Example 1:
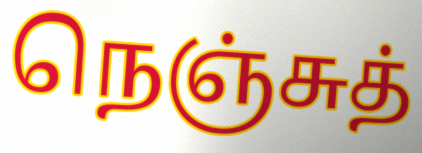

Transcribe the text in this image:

நெஞ்சுத்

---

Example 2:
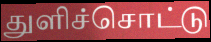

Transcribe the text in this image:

துளிச்சொட்டு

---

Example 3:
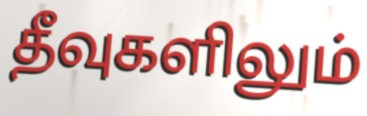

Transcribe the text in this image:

தீவுகளிலும்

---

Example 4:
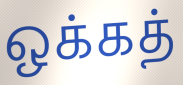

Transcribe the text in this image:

ஒக்கத்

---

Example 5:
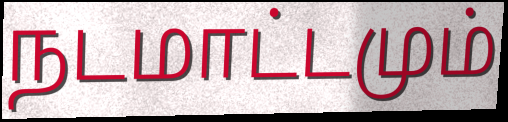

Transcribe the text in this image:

நடமாட்டமும்